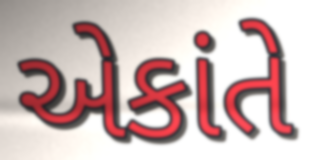
એકાંતે